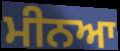
ਮੀਨਆ